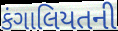
કંગાલિયતની